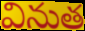
వినుత